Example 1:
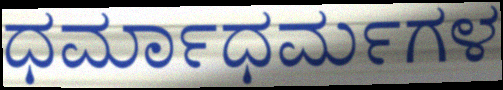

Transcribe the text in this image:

ಧರ್ಮಾಧರ್ಮಗಳ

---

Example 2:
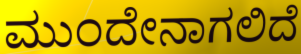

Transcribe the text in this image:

ಮುಂದೇನಾಗಲಿದೆ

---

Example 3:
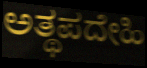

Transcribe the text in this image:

ಅತ್ಥಪದೇಹಿ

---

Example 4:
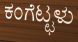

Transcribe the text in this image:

ಕಂಗೆಟ್ಟಳು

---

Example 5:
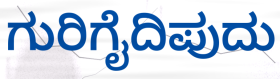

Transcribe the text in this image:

ಗುರಿಗೈದಿಪುದು